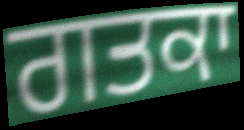
ਗਤਕਾ